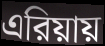
এরিয়ায়